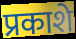
प्रकाशे